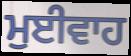
ਮੁਈਵਾਹ